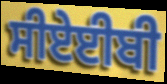
ਸੀਏਈਬੀ